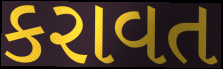
કરાવત